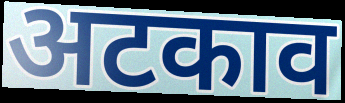
अटकाव